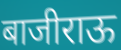
बाजीराऊ